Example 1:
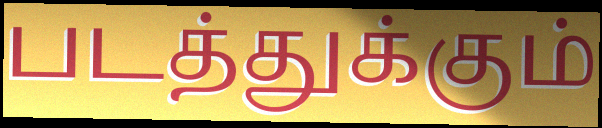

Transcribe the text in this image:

படத்துக்கும்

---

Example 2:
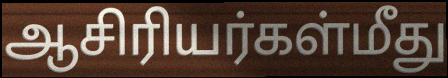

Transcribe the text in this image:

ஆசிரியர்கள்மீது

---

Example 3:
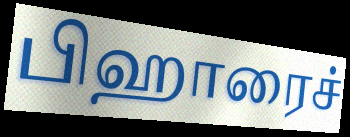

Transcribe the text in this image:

பிஹாரைச்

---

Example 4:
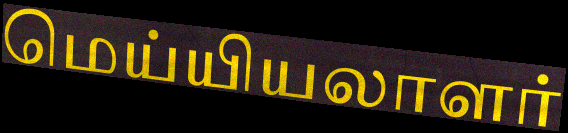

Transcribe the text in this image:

மெய்யியலாளர்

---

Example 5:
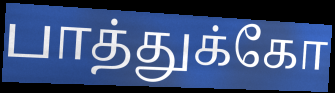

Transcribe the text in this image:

பாத்துக்கோ